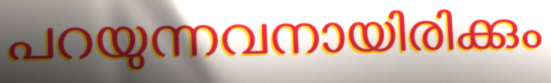
പറയുന്നവനായിരിക്കും